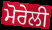
ਮੋਰੇਲੀ